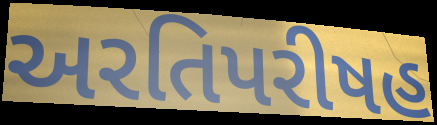
અરતિપરીષહ